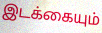
இடக்கையும்